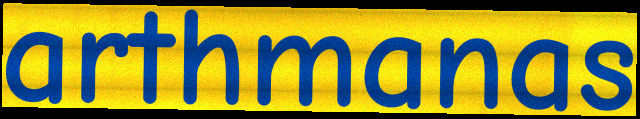
arthmanas